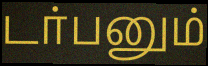
டர்பனும்